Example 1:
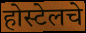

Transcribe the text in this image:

होस्टेलचे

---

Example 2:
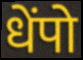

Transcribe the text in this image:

धेंपो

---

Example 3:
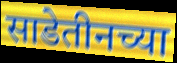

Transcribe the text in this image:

साडेतीनच्या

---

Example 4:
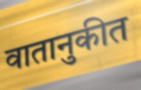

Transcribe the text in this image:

वातानुकीत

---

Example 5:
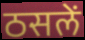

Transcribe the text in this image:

ठसलें